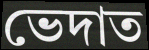
ভেদাত